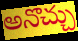
అనొచ్చు